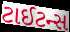
ટાઈટન્સ